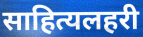
साहित्यलहरी